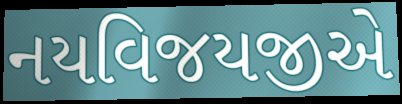
નયવિજયજીએ